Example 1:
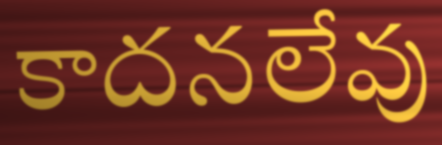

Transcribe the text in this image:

కాదనలేవు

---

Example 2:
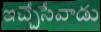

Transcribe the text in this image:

ఇచ్చేసేవాడు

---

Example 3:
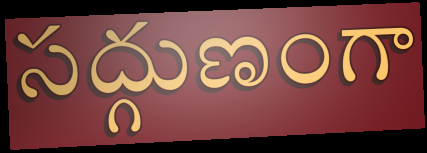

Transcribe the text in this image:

సద్గుణంగా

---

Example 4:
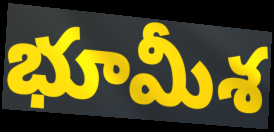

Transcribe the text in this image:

భూమీశ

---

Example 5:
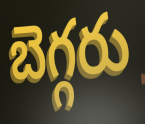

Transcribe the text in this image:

బెగ్గరు